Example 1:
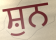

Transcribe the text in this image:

ਸ਼ੁਨ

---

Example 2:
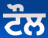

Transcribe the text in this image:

ਟੌਲ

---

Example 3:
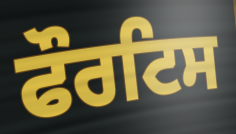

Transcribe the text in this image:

ਫੌਰਟਿਸ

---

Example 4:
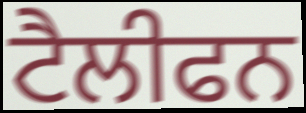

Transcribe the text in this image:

ਟੈਲੀਫਨ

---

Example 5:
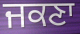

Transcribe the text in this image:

ਜਕਣਾ